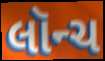
લૉન્ચ